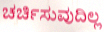
ಚರ್ಚಿಸುವುದಿಲ್ಲ